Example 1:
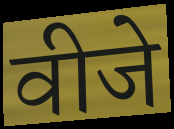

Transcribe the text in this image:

वीजे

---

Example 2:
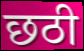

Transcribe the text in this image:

छठी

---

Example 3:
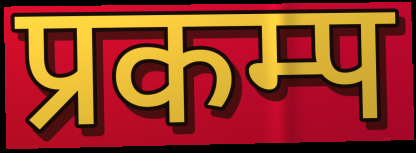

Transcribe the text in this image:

प्रकम्प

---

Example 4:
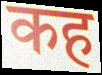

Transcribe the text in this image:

कह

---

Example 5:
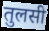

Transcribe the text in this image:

तुलसी